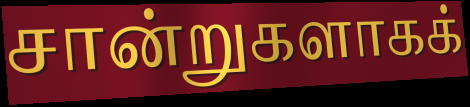
சான்றுகளாகக்